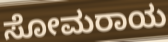
ಸೋಮರಾಯ